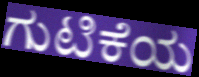
ಗುಟಿಕೆಯ